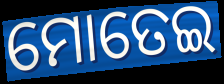
ମୋତେଇ